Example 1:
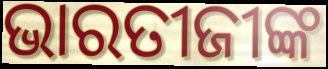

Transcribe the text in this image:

ଭାରତୀଜୀଙ୍କ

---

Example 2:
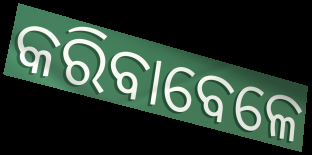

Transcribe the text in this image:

କରିବାବେଳେ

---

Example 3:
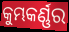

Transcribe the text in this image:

କୁମ୍ଭକର୍ଣ୍ଣର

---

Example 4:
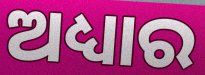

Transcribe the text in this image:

ଅଧ୍ୟାର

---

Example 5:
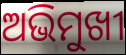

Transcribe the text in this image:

ଅଭିମୁଖୀ